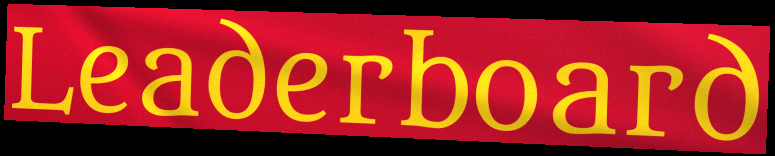
Leaderboard